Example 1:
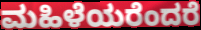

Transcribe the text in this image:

ಮಹಿಳೆಯರೆಂದರೆ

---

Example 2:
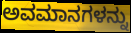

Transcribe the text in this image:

ಅವಮಾನಗಳನ್ನು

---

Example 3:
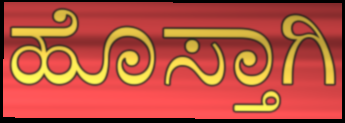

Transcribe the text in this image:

ಹೊಸ್ತಾಗಿ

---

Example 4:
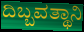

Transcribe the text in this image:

ದಿಬ್ಬವತ್ಥಾನಿ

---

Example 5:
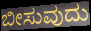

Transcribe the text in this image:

ಬೀಸುವುದು